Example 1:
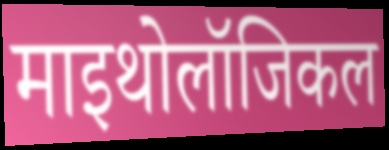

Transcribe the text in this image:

माइथोलॉजिकल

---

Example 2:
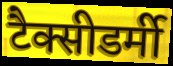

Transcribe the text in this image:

टैक्सीडर्मी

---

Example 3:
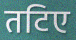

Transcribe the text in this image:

तटिए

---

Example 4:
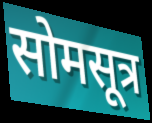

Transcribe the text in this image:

सोमसूत्र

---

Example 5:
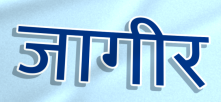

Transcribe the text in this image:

जागीर